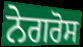
ਨੇਗਰੋਸ